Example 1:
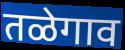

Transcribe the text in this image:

तळेगाव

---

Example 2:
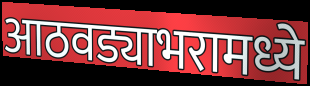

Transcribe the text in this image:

आठवड्याभरामध्ये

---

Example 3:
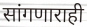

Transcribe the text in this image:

सांगणाराही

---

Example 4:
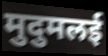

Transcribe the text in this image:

मुदुमलई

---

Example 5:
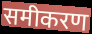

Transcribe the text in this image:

समीकरण